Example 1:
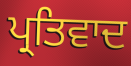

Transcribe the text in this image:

ਪ੍ਰਤਿਵਾਦ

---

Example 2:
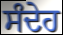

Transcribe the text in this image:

ਸੰਦੇਹ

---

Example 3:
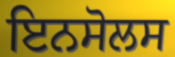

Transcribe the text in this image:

ਇਨਸੋਲਸ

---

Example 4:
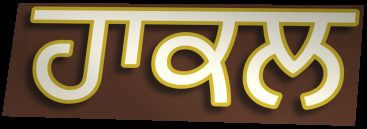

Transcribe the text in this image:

ਹਾਕਲ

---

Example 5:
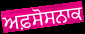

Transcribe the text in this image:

ਅਫ਼ਸੋਸਨਾਕ